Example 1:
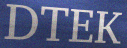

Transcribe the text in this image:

DTEK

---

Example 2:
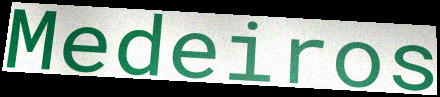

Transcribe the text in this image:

Medeiros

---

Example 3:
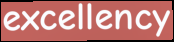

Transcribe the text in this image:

excellency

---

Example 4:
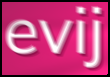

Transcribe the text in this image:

evij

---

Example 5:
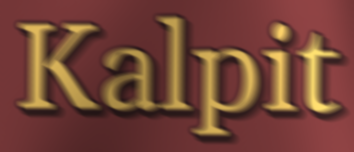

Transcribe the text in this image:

Kalpit